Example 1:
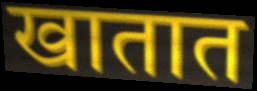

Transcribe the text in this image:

खातात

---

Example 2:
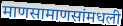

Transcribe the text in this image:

माणसामाणसांमधली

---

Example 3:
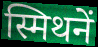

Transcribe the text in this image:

स्मिथनें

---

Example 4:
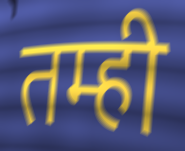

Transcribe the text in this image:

तम्ही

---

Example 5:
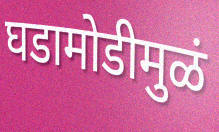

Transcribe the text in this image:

घडामोडीमुळं